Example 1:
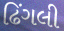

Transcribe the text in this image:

ઢિંગલી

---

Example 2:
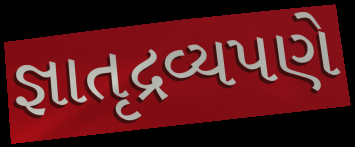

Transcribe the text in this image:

જ્ઞાતૃદ્રવ્યપણે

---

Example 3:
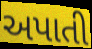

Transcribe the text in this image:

અપાતી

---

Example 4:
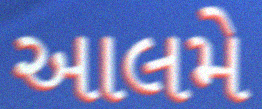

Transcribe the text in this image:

આલમે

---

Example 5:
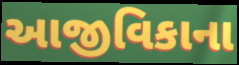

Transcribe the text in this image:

આજીવિકાના